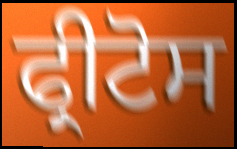
ਫ੍ਰੀਟੋਸ